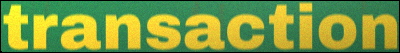
transaction